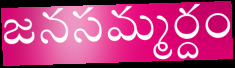
జనసమ్మర్దం